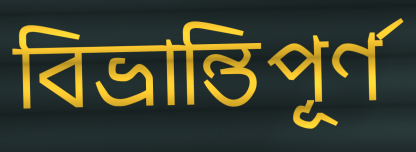
বিভ্রান্তিপূর্ণ